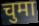
चुमा